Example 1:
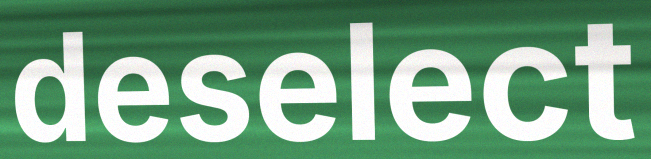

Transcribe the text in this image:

deselect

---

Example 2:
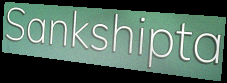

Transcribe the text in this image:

Sankshipta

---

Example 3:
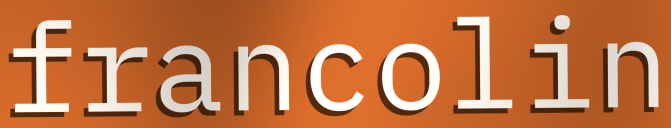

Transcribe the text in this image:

francolin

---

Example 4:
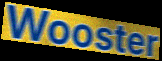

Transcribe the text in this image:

Wooster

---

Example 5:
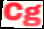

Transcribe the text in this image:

Cg